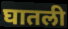
घातली